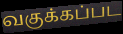
வகுக்கப்பட